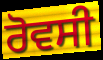
ਰੋਵਸੀ